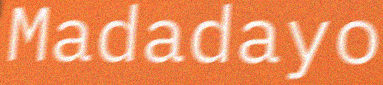
Madadayo